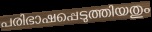
പരിഭാഷപ്പെടുത്തിയതും